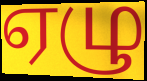
ஏழு